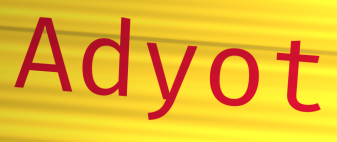
Adyot